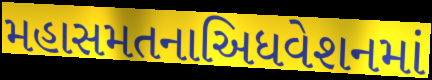
મહાસમતનાઅિધવેશનમાં